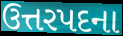
ઉત્તરપદના